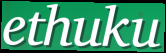
ethuku